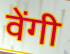
वेंगी